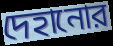
দেহানোর